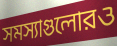
সমস্যাগুলোরও